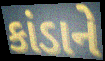
કાંડાને